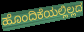
ಹೊಂದಿಕೆಯಲ್ಲಿಲ್ಲದ